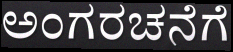
ಅಂಗರಚನೆಗೆ